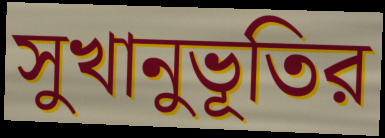
সুখানুভূতির